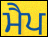
ਮੈਪ